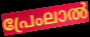
പ്രേംലാൽ